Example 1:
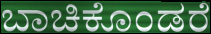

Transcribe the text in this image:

ಬಾಚಿಕೊಂಡರೆ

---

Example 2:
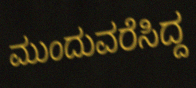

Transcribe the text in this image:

ಮುಂದುವರೆಸಿದ್ದ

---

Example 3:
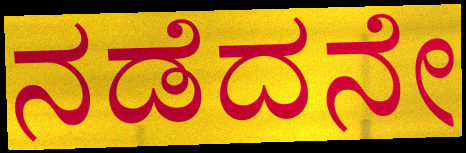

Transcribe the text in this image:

ನಡೆದನೇ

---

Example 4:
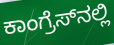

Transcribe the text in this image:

ಕಾಂಗ್ರೆಸ್‌ನಲ್ಲಿ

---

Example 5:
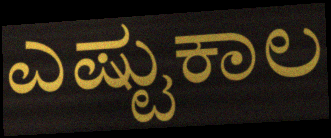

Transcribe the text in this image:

ಎಷ್ಟುಕಾಲ